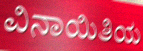
ವಿನಾಯಿತಿಯ